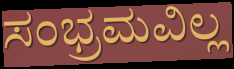
ಸಂಭ್ರಮವಿಲ್ಲ